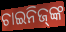
ଚାଇନିଜ୍‌ଙ୍କ